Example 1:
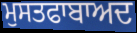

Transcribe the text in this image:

ਮੁਸਤਫਾਬਾਅਦ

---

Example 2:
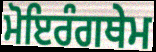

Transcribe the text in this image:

ਮੋਇਰੰਗਥੇਮ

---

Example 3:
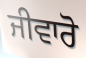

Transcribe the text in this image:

ਜੀਵਾਰੋ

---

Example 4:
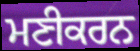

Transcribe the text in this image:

ਮਣੀਕਰਨ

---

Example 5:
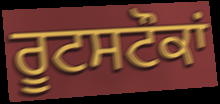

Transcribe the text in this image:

ਰੂਟਸਟੌਕਾਂ